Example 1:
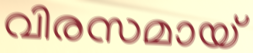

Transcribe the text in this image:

വിരസമായ്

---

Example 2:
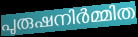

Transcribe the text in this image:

പുരുഷനിർമ്മിത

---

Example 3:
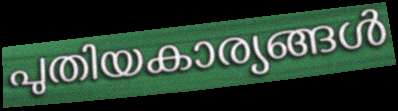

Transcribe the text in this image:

പുതിയകാര്യങ്ങൾ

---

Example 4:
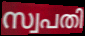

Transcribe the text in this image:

സ്വപതി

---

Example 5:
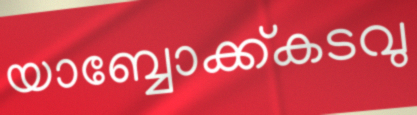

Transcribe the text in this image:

യാബ്ബോക്ക്കടവു